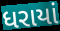
ધરાયાં